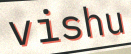
vishu